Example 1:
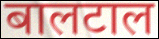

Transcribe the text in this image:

बालटाल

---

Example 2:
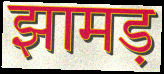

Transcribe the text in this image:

झामड़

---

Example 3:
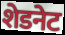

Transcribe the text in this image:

शेडनेट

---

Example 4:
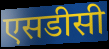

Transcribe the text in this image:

एसडीसी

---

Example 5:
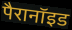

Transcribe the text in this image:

पैरानॉइड